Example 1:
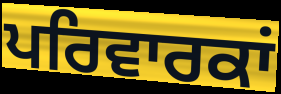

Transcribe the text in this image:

ਪਰਿਵਾਰਕਾਂ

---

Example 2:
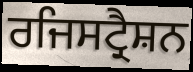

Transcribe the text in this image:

ਰਜਿਸਟ੍ਰੈਸ਼ਨ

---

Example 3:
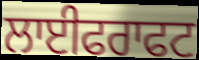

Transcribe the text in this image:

ਲਾਈਫਰਾਫਟ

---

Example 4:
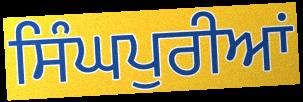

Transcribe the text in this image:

ਸਿੰਘਪੁਰੀਆਂ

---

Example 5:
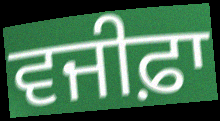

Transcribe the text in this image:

ਵਜੀਫ਼ਾ